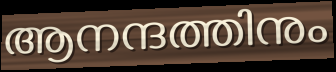
ആനന്ദത്തിനും